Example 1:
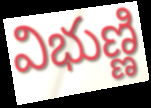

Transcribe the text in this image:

విభుణ్ణి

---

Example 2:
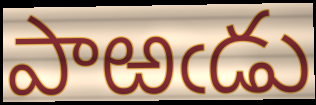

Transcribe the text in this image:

పాఱఁడు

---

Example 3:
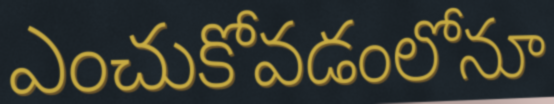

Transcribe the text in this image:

ఎంచుకోవడంలోనూ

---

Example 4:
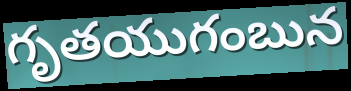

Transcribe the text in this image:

గృతయుగంబున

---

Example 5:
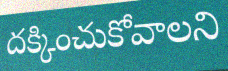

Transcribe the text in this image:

దక్కించుకోవాలని